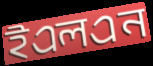
ইএলএন